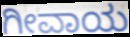
ಗೀವಾಯ